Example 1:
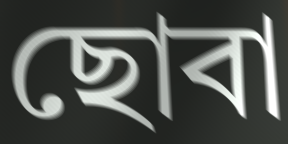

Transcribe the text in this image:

ছোবা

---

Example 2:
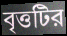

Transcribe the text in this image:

বৃত্তটির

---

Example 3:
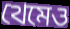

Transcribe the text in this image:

থেমেও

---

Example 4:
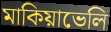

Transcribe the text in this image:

মাকিয়াভেলি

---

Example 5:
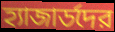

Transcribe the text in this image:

হ্যাজার্ডদের